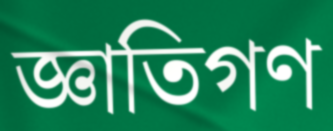
জ্ঞাতিগণ